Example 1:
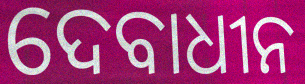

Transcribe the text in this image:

ଦେବାଧୀନ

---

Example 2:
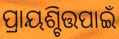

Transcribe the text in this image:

ପ୍ରାୟଶ୍ଚିତ୍ତପାଇଁ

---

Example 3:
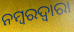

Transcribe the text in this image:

ନମ୍ବରଦ୍ୱାରା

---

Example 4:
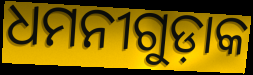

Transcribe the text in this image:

ଧମନୀଗୁଡ଼ାକ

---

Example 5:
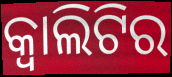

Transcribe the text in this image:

କ୍ୱାଲିଟିର